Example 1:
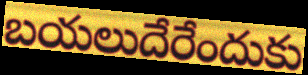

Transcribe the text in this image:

బయలుదేరేందుకు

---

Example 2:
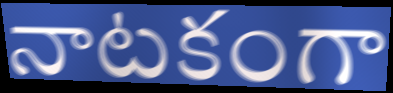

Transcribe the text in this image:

నాటకంగా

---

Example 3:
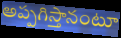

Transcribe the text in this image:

అప్పగిస్తానంటూ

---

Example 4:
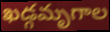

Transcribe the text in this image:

ఖడ్గమృగాల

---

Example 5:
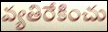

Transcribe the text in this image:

వ్యతిరేకించు